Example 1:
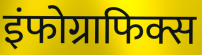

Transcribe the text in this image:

इंफोग्राफिक्स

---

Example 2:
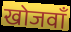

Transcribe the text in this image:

खोजवाँ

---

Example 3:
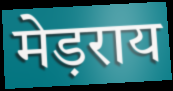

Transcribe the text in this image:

मेड़राय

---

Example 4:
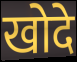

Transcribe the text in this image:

खोदे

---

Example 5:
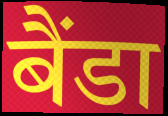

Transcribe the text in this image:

बैंडा